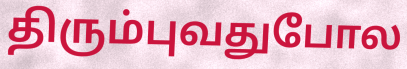
திரும்புவதுபோல